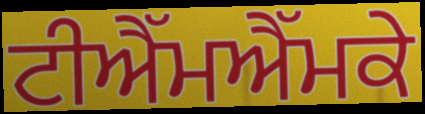
ਟੀਐੱਮਐੱਮਕੇ